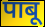
पाबू